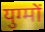
युग्मों